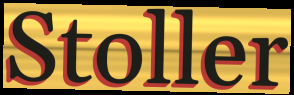
Stoller